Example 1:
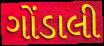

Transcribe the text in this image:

ગોંડાલી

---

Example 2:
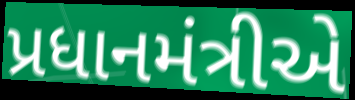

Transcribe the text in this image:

પ્રધાનમંત્રીએ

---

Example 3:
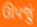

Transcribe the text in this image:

ઊપજું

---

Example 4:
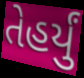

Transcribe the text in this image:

તેહર્યું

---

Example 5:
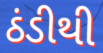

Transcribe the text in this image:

ઠંડીથી